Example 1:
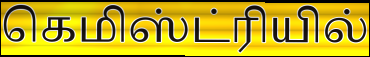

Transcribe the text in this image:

கெமிஸ்ட்ரியில்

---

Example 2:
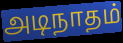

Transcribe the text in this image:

அடிநாதம்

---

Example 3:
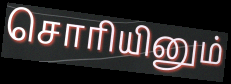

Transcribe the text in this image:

சொரியினும்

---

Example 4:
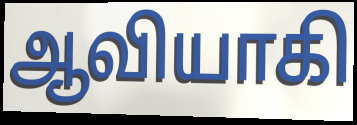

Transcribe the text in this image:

ஆவியாகி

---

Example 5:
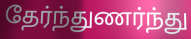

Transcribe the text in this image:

தேர்ந்துணர்ந்து